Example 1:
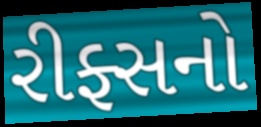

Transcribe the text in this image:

રીફ્સનો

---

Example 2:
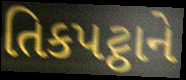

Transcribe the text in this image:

તિકપટ્ઠાને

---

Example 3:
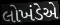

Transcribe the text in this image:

લોખંડેએ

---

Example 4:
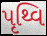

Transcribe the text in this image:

પૃથ્વિ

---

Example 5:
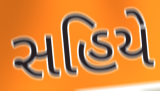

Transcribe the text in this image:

સહિયે